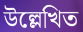
উল্লেখিত